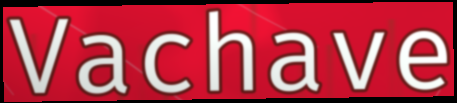
Vachave